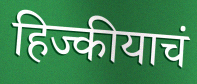
हिज्कीयाचं